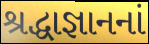
શ્રદ્ધાજ્ઞાનનાં